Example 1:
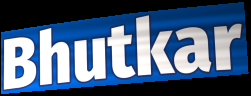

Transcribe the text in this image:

Bhutkar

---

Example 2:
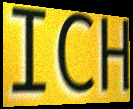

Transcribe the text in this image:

ICH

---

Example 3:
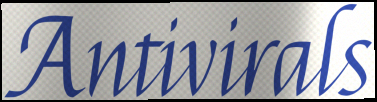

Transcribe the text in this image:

Antivirals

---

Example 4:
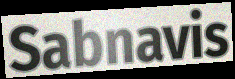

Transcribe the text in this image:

Sabnavis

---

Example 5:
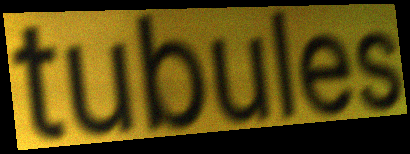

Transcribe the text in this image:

tubules